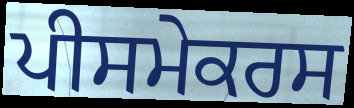
ਪੀਸਮੇਕਰਸ